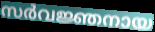
സർവജ്ഞനായ